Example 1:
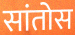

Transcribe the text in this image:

सांतोस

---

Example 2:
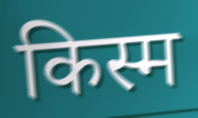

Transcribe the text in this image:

किस्‍म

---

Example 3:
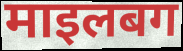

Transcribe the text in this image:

माइलबग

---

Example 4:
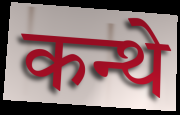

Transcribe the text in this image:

कन्थे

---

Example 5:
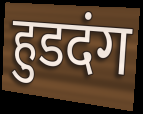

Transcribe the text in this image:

हुडदंग